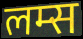
लम्स